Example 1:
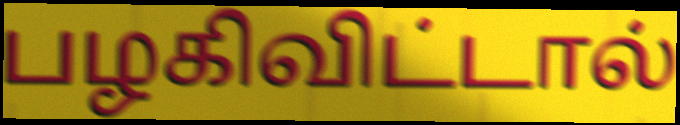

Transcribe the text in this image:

பழகிவிட்டால்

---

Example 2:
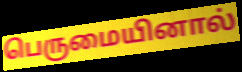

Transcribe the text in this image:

பெருமையினால்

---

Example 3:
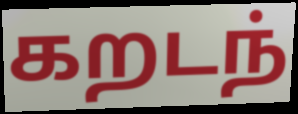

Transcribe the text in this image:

கறடந்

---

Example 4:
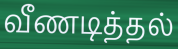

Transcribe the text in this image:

வீணடித்தல்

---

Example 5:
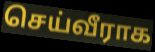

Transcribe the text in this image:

செய்வீராக